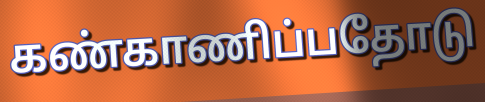
கண்காணிப்பதோடு